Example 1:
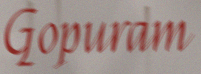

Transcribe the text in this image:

Gopuram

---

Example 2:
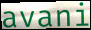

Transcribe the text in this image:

avani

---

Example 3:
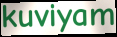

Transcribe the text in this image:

kuviyam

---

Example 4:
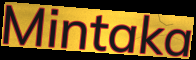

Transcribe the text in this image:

Mintaka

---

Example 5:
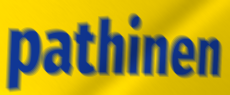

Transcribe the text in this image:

pathinen